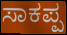
ಸಾಕಪ್ಪ